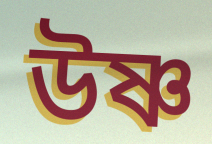
উষ্ণ